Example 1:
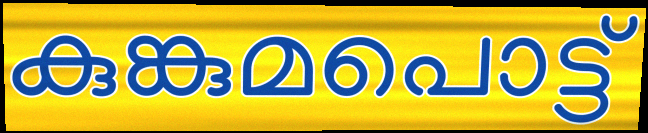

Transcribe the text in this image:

കുങ്കുമപൊട്ട്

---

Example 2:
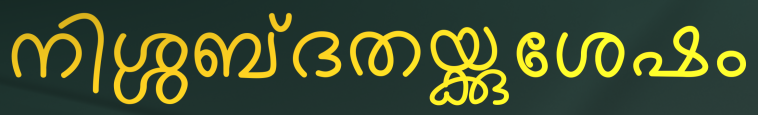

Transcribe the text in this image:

നിശ്ശബ്ദതയ്ക്കുശേഷം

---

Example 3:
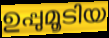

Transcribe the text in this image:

ഉപ്പുമൂടിയ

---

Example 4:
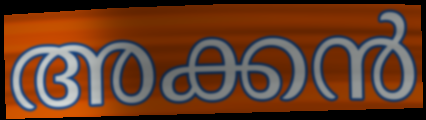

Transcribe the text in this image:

അക്കൻ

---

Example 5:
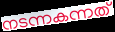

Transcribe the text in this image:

നടന്നകന്നത്